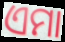
ଏମା